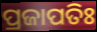
ପ୍ରଜାପତିଃ